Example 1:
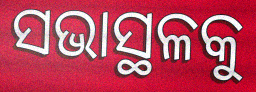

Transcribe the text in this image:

ସଭାସ୍ଥଳକୁ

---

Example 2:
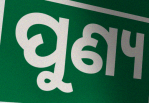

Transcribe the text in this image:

ପୁଣ୍ୟ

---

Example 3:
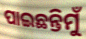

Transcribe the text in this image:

ପାଇଛନ୍ତିମୁଁ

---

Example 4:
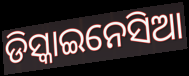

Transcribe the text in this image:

ଡିସ୍କାଇନେସିଆ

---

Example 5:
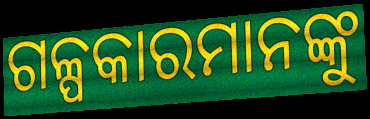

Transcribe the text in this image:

ଗଳ୍ପକାରମାନଙ୍କୁ